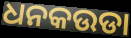
ଧନକଉଡା